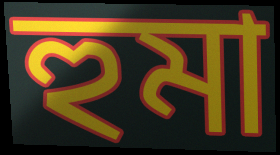
হুমা